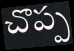
చొప్ప